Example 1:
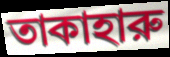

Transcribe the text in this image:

তাকাহারু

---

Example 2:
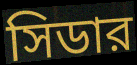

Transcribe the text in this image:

সিডার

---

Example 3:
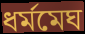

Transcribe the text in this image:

ধর্মমেঘ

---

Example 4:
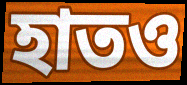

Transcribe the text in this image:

হাতও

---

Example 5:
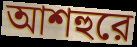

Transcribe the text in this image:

আশহুরে